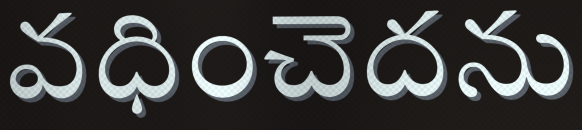
వధించెదను